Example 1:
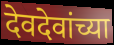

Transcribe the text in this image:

देवदेवांच्या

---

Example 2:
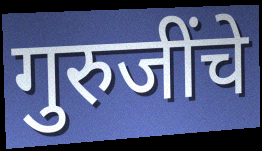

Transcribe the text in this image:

गुरुजींचे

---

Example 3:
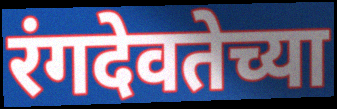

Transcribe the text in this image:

रंगदेवतेच्या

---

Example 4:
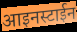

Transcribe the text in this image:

आइनस्टाईन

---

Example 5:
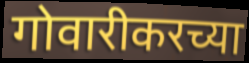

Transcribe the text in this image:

गोवारीकरच्या